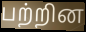
பற்றின